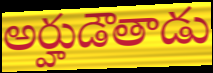
అర్హుడౌతాడు